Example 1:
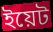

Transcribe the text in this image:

ইয়েট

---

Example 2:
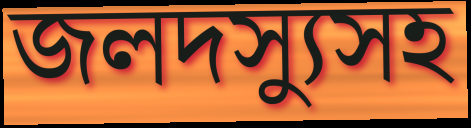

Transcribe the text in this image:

জলদস্যুসহ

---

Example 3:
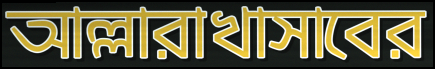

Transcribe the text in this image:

আল্লারাখাসাবের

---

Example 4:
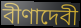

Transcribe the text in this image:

বীণাদেবী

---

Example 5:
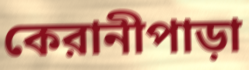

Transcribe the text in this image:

কেরানীপাড়া